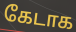
கேடாக